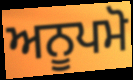
ਅਨੂਪਮੋ